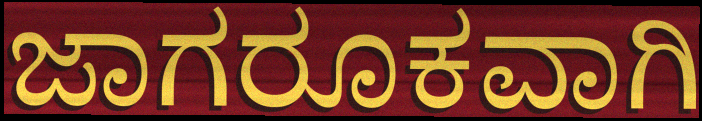
ಜಾಗರೂಕವಾಗಿ